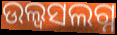
ଉଲ୍ୱସଲଗ୍ନ